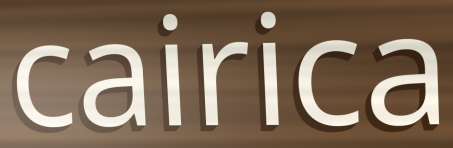
cairica